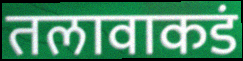
तलावाकडं